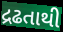
દ્રઢતાથી